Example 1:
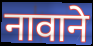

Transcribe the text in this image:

नावाने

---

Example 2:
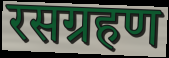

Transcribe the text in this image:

रसग्रहण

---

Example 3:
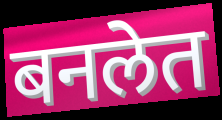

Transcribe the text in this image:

बनलेत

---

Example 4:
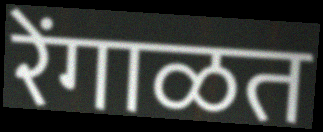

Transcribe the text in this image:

रेंगाळत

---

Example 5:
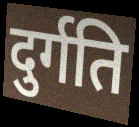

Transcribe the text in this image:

दुर्गति